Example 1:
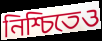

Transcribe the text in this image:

নিশ্চিতেও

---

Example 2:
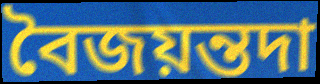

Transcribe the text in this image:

বৈজয়ন্তদা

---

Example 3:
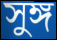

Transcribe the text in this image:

সুঙ্গ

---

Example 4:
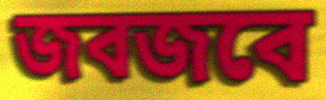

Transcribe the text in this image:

জবজবে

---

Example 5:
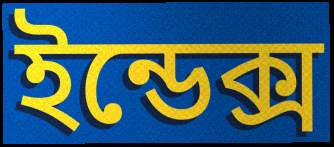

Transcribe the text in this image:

ইন্ডেক্স